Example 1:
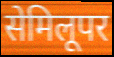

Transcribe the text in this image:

सेमिलूपर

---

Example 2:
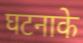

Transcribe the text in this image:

घटनाके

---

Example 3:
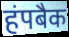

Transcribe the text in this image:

हंपबैक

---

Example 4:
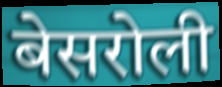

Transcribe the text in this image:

बेसरोली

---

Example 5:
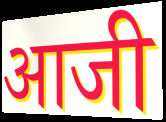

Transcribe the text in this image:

आजी